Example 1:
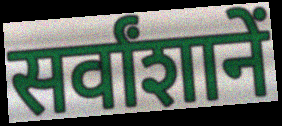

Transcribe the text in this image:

सर्वांशानें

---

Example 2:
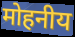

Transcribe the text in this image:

मोहनीय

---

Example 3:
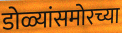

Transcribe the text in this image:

डोळ्यांसमोरच्या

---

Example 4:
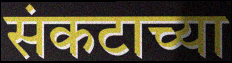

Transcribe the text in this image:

संकटाच्या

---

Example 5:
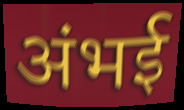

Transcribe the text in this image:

अंभई